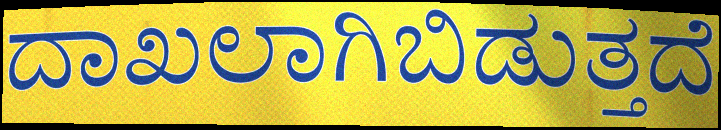
ದಾಖಲಾಗಿಬಿಡುತ್ತದೆ